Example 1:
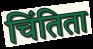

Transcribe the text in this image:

चिंतिता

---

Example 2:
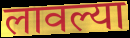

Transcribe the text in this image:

लावल्या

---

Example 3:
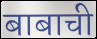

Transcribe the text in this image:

बाबाची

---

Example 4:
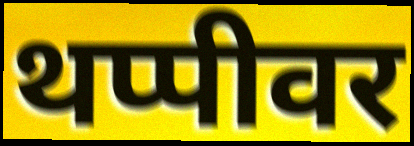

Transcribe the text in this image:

थप्पीवर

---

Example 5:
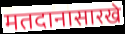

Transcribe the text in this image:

मतदानासारखे